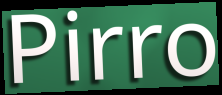
Pirro